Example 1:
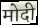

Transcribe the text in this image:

मोदी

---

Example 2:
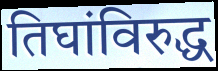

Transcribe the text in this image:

तिघांविरुद्ध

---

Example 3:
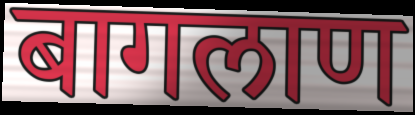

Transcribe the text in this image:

बागलाण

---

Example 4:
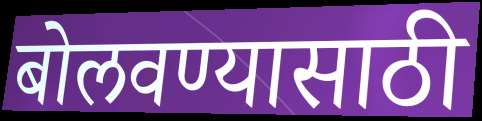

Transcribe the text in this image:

बोलवण्यासाठी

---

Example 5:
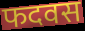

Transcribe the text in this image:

फदवस